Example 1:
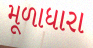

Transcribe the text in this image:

મૂળાધારા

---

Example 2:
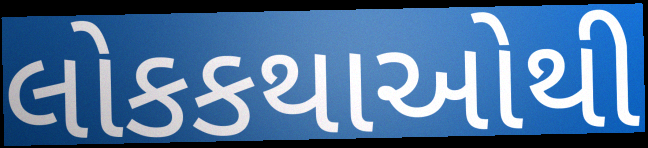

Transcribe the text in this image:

લોકકથાઓથી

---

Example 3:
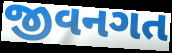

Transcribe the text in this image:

જીવનગત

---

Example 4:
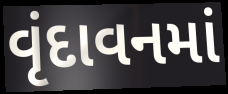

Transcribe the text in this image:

વૃંદાવનમાં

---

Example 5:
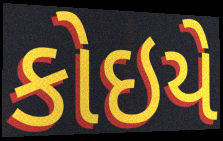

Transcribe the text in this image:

કોઇયે